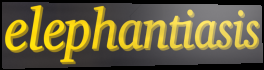
elephantiasis